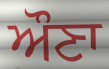
ਔਣਾ